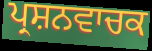
ਪ੍ਰਸ਼ਨਵਾਚਕ